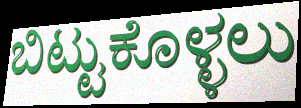
ಬಿಟ್ಟುಕೊಳ್ಳಲು